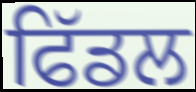
ਫਿੱਡਲ